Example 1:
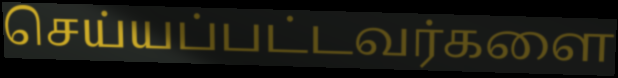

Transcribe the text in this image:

செய்யப்பட்டவர்களை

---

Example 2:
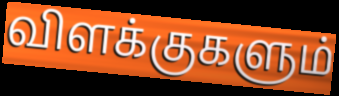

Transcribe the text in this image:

விளக்குகளும்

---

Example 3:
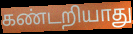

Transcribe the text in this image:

கண்டறியாது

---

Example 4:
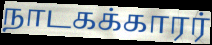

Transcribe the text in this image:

நாடகக்காரர்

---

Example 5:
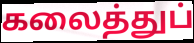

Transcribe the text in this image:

கலைத்துப்